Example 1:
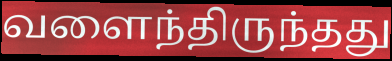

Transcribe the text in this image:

வளைந்திருந்தது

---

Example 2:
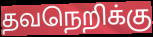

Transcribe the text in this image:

தவநெறிக்கு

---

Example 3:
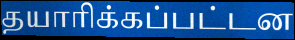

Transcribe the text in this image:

தயாரிக்கப்பட்டன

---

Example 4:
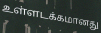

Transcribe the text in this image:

உள்ளடக்கமானது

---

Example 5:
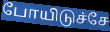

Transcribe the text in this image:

போயிடுச்சே